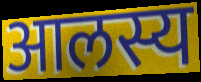
आलस्य